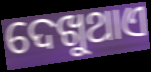
ଦେଖୁଥାଏ